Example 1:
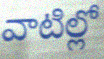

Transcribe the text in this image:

వాటిల్లో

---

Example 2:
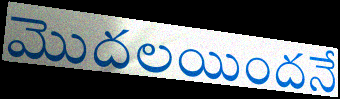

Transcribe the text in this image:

మొదలయిందనే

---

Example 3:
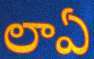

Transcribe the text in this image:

లాఏ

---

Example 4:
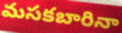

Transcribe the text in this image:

మసకబారినా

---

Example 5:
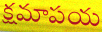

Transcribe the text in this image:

క్షమాపయ